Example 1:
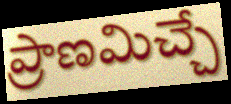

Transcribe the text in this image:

ప్రాణమిచ్చే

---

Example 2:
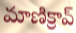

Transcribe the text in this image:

మాణిక్రావ్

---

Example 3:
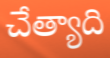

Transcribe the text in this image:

చేత్యాది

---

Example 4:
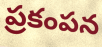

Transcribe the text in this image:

ప్రకంపన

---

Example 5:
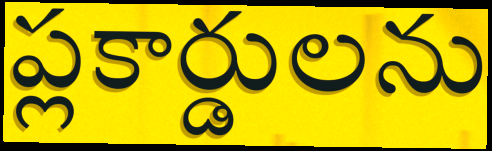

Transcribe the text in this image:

ప్లకార్డులను